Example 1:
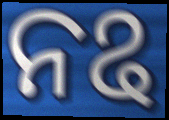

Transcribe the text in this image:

ନୡ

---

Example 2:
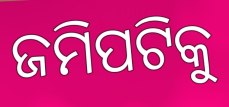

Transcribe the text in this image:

ଜମିପଟିକୁ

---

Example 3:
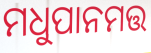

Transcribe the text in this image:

ମଧୁପାନମତ୍ତ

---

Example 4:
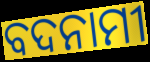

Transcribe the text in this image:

ବଦନାମୀ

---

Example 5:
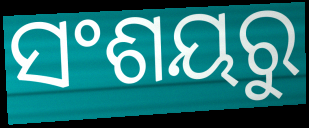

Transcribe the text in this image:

ସଂଶୟରୁ